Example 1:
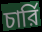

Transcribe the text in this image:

চার্রি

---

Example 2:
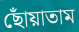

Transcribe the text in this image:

ছোঁয়াতাম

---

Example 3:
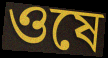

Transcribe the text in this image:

ওষে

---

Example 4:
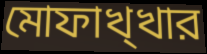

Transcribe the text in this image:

মোফাখ্খার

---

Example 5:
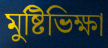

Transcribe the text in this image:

মুষ্টিভিক্ষা